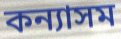
কন্যাসম